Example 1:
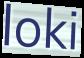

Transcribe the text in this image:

loki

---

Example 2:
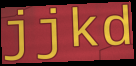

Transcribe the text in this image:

jjkd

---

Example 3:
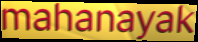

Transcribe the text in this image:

mahanayak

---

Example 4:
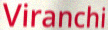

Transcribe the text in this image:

Viranchi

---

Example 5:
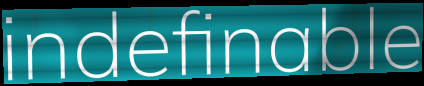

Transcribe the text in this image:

indefinable